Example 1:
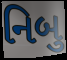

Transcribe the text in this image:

નિબુ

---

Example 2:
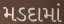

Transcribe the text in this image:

મડદામાં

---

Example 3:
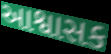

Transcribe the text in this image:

આશ્વાસક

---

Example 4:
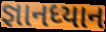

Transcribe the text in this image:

જ્ઞાનધ્યાન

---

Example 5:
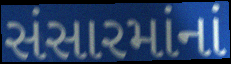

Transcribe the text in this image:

સંસારમાંનાં